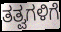
ತತ್ವಗಳಿಗೆ